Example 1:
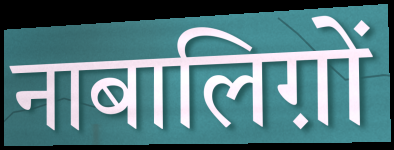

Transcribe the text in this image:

नाबालिग़ों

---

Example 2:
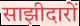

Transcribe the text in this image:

साझीदारों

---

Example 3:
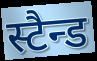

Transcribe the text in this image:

स्टैन्ड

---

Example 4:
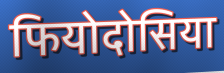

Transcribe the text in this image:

फियोदोसिया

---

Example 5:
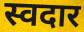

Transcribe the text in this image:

स्वदार